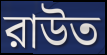
রাউত